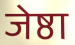
जेष्ठा